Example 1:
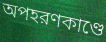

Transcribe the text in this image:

অপহরণকাণ্ডে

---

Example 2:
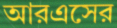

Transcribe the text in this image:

আরএসের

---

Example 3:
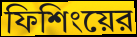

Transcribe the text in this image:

ফিশিংয়ের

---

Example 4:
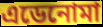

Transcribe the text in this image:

এডেনোমা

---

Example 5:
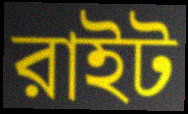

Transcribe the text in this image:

রাইট